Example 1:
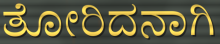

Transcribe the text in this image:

ತೋರಿದನಾಗಿ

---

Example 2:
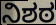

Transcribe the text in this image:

ನಿಶಠ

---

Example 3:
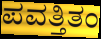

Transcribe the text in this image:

ಪವತ್ತಿತಂ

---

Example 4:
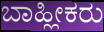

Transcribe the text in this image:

ಬಾಹ್ಲೀಕರು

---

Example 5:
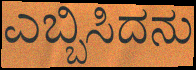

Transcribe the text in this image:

ಎಬ್ಬಿಸಿದನು